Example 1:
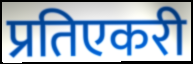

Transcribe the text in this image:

प्रतिएकरी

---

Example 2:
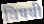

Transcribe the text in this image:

विषयी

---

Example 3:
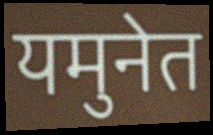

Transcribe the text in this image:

यमुनेत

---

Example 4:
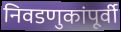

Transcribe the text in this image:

निवडणुकांपूर्वी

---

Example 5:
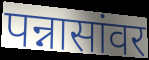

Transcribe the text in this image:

पन्नासांवर